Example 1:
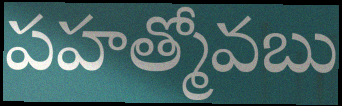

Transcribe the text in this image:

పహత్మోవబు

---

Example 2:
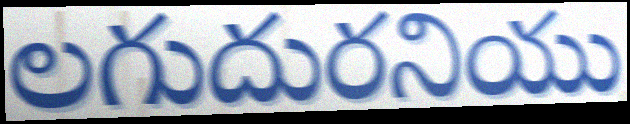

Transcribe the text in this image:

లగుదురనియు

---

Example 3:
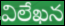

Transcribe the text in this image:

విలేఖన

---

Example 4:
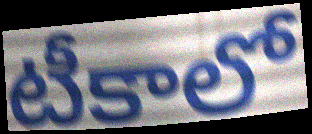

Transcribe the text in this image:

టీకాలో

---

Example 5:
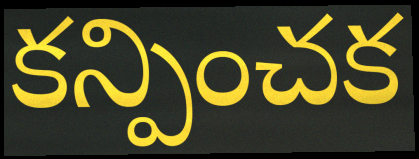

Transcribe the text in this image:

కన్పించక